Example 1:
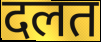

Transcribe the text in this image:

दलत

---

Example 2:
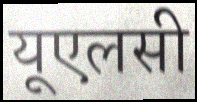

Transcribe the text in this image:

यूएलसी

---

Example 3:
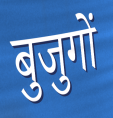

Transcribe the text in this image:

बुजुगों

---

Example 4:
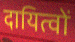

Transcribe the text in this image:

दायित्वों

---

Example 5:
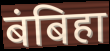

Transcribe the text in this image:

बंबिहा